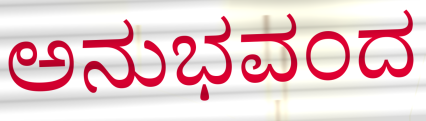
ಅನುಭವಂದ